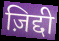
ज़िद्दी